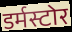
डर्मस्टोर